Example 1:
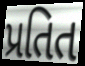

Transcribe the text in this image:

પ્રતિત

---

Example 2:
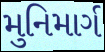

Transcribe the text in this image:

મુનિમાર્ગ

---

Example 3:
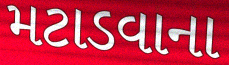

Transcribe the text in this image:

મટાડવાના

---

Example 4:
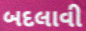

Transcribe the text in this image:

બદલાવી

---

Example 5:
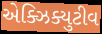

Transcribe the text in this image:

એક્ઝિક્યુટીવ